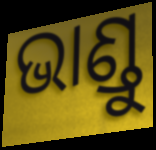
ଭାଣ୍ଡୁ